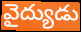
వైద్యుడు